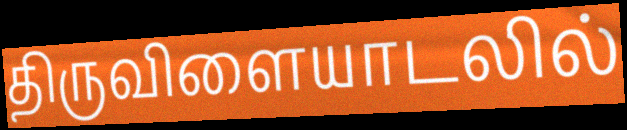
திருவிளையாடலில்